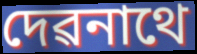
দেৱনাথে